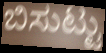
ಬಿಸುಟ್ಟು